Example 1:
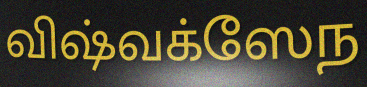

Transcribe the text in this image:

விஷ்வக்ஸேந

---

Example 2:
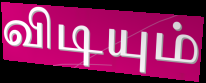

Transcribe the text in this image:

விடியும்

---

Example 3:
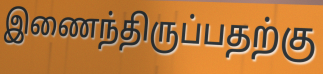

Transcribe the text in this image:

இணைந்திருப்பதற்கு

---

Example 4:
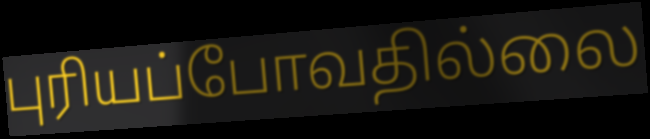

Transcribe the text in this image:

புரியப்போவதில்லை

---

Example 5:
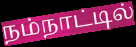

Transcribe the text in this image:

நம்நாட்டில்